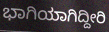
ಭಾಗಿಯಾಗಿದ್ದೀರಿ